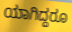
ಯಾಗಿದ್ದರೂ